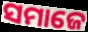
ସମାଜେ